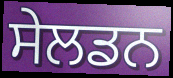
ਸੇਲਡਨ